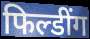
फिल्डींग